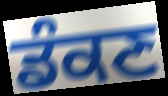
ਡੰਕਣ